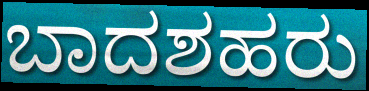
ಬಾದಶಹರು